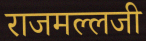
राजमल्लजी